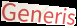
Generis